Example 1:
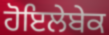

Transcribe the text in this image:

ਹੋਇਲੇਬੇਕ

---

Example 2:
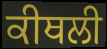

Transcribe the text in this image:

ਕੀਥਲੀ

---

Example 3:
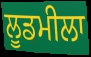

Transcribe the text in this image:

ਲੂਡਮੀਲਾ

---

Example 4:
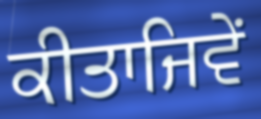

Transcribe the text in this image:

ਕੀਤਾਜਿਵੇਂ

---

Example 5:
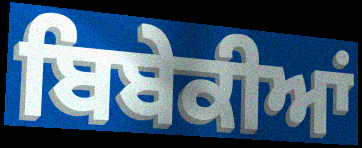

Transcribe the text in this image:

ਬਿਬੇਕੀਆਂ